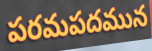
పరమపదమున